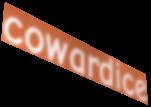
cowardice